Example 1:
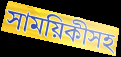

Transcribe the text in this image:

সাময়িকীসহ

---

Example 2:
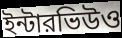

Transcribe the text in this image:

ইন্টারভিউও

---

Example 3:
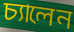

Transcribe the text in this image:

চ্যালেন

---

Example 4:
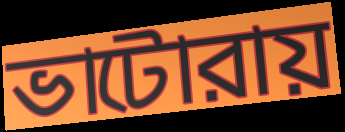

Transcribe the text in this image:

ভাটোরায়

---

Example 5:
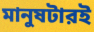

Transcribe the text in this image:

মানুষটারই